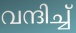
വന്ദിച്ച്